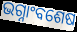
ଭଗ୍ନାଂବଶେଷ